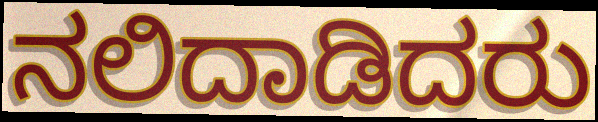
ನಲಿದಾಡಿದರು